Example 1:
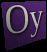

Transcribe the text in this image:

Oy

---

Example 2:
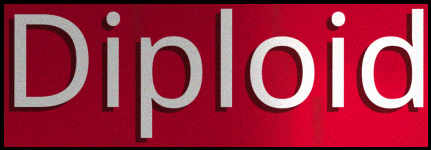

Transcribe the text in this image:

Diploid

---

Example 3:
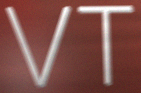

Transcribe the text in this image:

VT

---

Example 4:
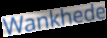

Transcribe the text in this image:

Wankhede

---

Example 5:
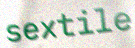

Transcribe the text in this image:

sextile